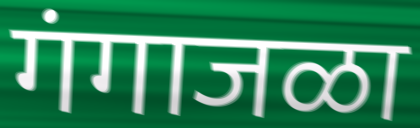
गंगाजळा